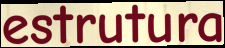
estrutura